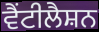
ਵੈਂਟੀਲੈਸ਼ਨ